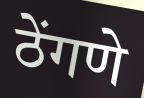
ठेंगणे